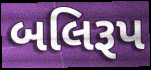
બલિરૂપ